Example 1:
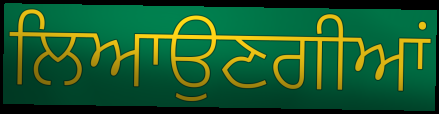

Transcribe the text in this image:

ਲਿਆਉਣਗੀਆਂ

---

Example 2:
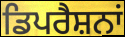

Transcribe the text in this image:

ਡਿਪਰੈਸ਼ਨਾਂ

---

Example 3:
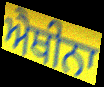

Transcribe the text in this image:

ਐਥੀਨਾ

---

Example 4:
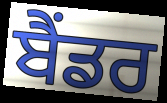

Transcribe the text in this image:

ਬੈਂਡਰ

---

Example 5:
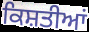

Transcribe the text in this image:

ਕਿਸ਼ਤੀਆਂ